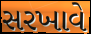
સરખાવે